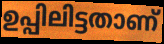
ഉപ്പിലിട്ടതാണ്